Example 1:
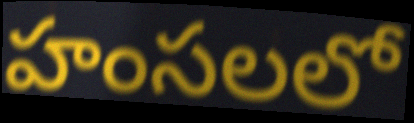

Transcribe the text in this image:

హంసలలో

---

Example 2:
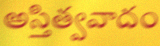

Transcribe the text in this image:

అస్తిత్వవాదం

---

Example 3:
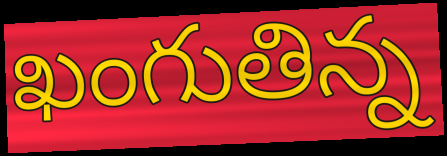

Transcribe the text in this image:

ఖంగుతిన్న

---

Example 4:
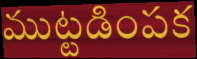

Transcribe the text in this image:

ముట్టడింపక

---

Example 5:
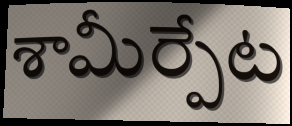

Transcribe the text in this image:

శామీర్పేట